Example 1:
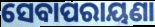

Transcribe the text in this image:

ସେବାପରାୟଣା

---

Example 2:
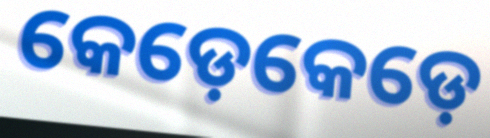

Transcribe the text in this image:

କେଡ଼େକେଡ଼େ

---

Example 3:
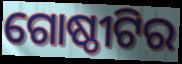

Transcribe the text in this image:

ଗୋଷ୍ଠୀଟିର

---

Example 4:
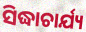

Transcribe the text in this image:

ସିଦ୍ଧାଚାର୍ଯ୍ୟ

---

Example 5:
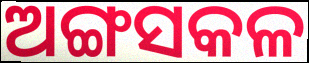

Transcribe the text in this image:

ଅଙ୍ଗସକଳ